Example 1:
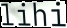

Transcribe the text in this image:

lihi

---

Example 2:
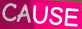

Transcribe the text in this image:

CAUSE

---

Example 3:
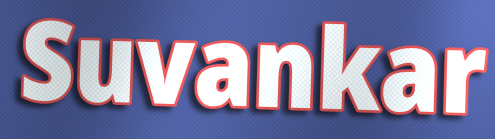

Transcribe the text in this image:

Suvankar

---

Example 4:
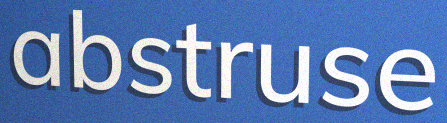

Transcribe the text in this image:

abstruse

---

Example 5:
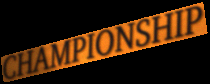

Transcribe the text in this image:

CHAMPIONSHIP